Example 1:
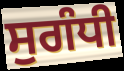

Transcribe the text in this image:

ਸੁਗੰਧੀ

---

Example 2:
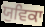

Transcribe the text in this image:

ਯੁਵਿਕਾ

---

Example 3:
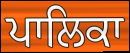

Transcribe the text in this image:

ਪਾਲਿਕਾ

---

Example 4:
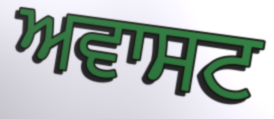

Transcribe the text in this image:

ਅਵਾਸਟ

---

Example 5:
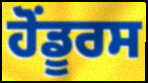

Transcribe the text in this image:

ਹੋਂਡੂਰਸ